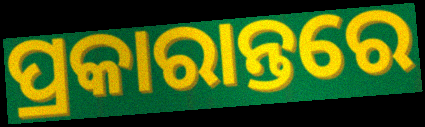
ପ୍ରକାରାନ୍ତରେ